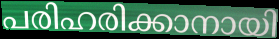
പരിഹരിക്കാനായി